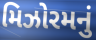
મિઝોરમનું